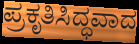
ಪ್ರಕೃತಿಸಿದ್ಧವಾದ